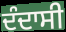
ਦੰਦਾਸੀ